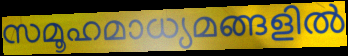
സമൂഹമാധ്യമങ്ങളിൽ